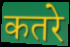
कतरे